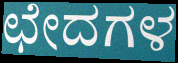
ಛೇದಗಳ